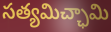
సత్యమిచ్ఛామి